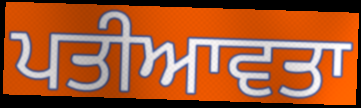
ਪਤੀਆਵਤਾ